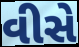
વીસે